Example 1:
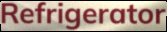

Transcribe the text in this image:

Refrigerator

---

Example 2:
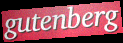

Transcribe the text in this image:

gutenberg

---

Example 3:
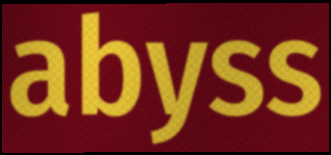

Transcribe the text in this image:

abyss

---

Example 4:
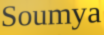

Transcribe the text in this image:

Soumya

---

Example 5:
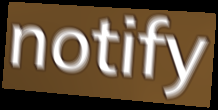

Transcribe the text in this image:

notify